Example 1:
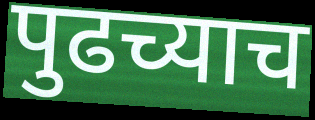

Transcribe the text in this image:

पुढच्याच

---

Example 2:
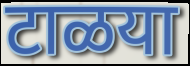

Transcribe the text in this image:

टाळया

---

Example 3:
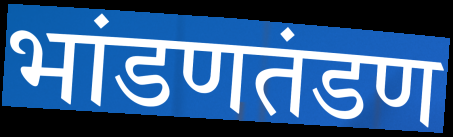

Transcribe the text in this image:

भांडणतंडण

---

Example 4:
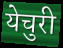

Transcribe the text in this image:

येचुरी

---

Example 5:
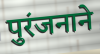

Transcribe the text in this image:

पुरंजनाने